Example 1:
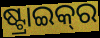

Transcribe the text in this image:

ଷ୍ଟ୍ରାଇକ୍‍ର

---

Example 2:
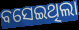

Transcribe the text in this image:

ବସେଇଥିଲା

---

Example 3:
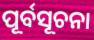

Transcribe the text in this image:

ପୂର୍ବସୂଚନା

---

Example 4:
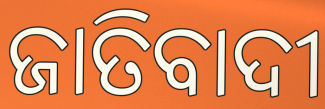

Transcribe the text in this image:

ଜାତିବାଦୀ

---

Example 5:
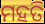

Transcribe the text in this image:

ମହତି